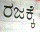
ರಜಕ್ಕೆ